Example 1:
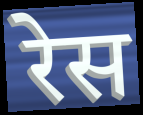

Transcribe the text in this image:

रेस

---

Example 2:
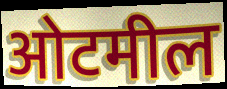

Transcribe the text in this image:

ओटमील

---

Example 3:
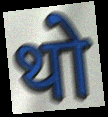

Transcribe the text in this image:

थो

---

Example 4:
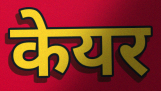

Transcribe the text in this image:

केयर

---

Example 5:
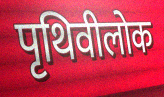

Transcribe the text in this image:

पृथिवीलोक